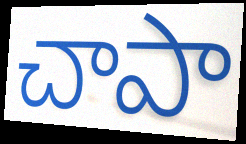
చాపా